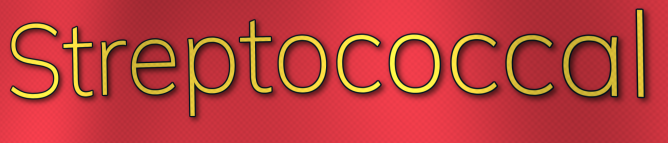
Streptococcal